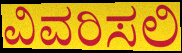
ವಿವರಿಸಲಿ